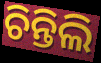
ଚିନ୍ତିଲି